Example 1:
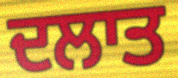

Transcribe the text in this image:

ਦਲਾਤ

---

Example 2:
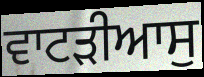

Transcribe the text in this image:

ਵਾਟੜੀਆਸੁ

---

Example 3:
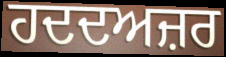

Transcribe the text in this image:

ਹਦਦਅਜ਼ਰ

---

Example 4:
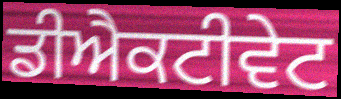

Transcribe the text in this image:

ਡੀਐਕਟੀਵੇਟ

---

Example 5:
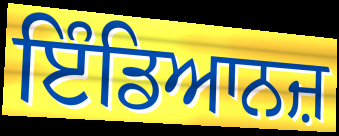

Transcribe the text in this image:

ਇੰਡਿਆਨਜ਼